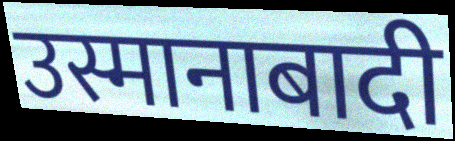
उस्मानाबादी